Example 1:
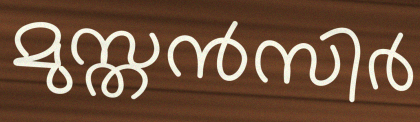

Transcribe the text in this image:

മുസ്തൻസിർ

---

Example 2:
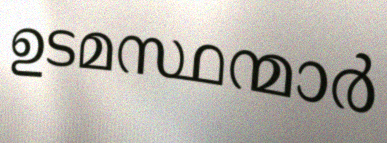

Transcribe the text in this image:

ഉടമസ്ഥന്മാർ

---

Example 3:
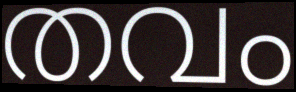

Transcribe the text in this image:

തവം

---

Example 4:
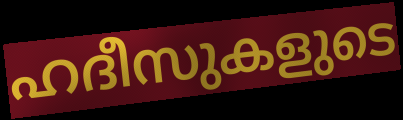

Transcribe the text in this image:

ഹദീസുകളുടെ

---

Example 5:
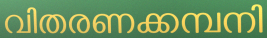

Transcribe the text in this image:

വിതരണക്കമ്പനി